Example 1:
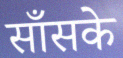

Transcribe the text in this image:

साँसके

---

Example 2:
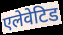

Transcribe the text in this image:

एलेवेटिड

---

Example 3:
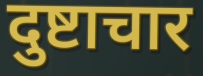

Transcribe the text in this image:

दुष्टाचार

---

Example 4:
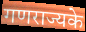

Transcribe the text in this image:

गणराज्यके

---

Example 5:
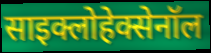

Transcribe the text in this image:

साइक्लोहेक्सेनॉल